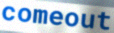
comeout